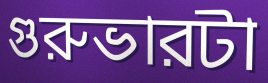
গুরুভারটা